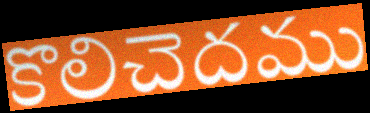
కొలిచెదము